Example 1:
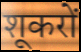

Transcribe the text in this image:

शूकरों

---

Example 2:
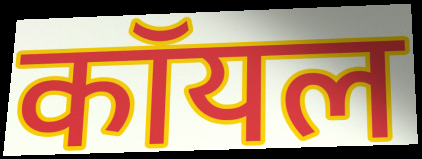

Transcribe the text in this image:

कॉयल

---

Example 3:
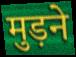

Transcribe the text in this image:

मुड़ने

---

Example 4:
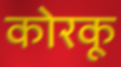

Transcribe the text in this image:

कोरकू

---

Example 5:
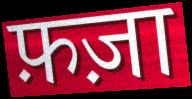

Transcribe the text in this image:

फ़ज़ा